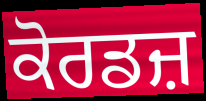
ਕੋਰਡਜ਼